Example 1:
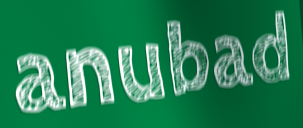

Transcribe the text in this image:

anubad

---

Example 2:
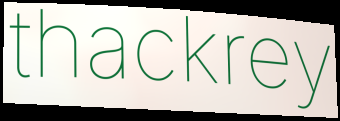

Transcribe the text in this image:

thackrey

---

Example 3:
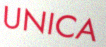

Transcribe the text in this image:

UNICA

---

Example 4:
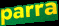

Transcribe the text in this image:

parra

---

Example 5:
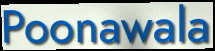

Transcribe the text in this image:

Poonawala